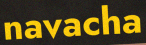
navacha